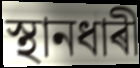
স্থানধাৰী